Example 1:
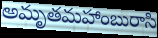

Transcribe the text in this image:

అమృతమహాంబురాసి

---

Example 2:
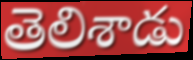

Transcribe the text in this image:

తెలిశాడు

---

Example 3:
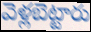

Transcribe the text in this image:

వెళ్లబెట్టారు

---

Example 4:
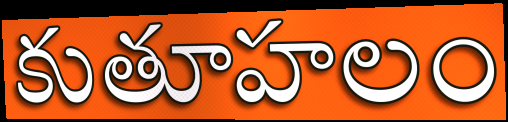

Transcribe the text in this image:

కుతూహలం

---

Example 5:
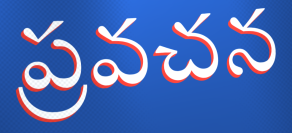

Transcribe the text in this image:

ప్రవచన